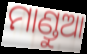
ମାଣ୍ଡୁଆ